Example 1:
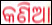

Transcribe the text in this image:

କଣିଆ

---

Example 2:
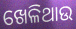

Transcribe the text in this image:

ଖେଳିଥାଉ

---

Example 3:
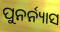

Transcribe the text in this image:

ପୁନର୍ନ୍ୟାସ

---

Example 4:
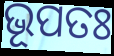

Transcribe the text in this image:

ଭୂପତଃ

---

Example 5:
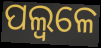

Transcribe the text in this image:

ପଲ୍ୱଳେ